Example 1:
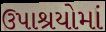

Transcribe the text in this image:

ઉપાશ્રયોમાં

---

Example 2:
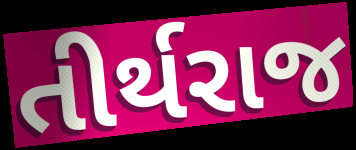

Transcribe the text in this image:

તીર્થરાજ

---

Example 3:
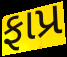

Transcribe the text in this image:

ફાપ્ર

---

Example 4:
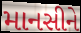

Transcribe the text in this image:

માનસીને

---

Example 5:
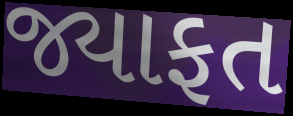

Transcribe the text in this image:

જ્યાફત